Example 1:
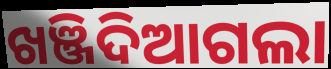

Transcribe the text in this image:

ଖଞ୍ଜିଦିଆଗଲା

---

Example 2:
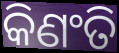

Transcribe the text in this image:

କିଣଂତି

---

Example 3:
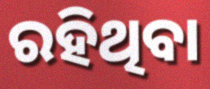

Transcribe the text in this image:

ରହିଥିବା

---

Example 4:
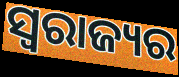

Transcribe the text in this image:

ସ୍ୱରାଜ୍ୟର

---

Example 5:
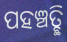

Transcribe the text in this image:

ପହଞ୍ଚତ୍ଛି